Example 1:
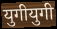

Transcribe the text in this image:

युगीयुगी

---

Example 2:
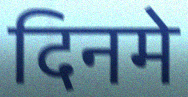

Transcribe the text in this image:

दिनमे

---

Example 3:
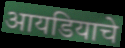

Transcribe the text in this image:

आयडियाचे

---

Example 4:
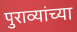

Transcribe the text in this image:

पुराव्यांच्या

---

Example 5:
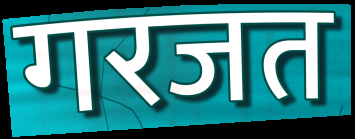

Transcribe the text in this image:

गरजत